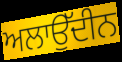
ਅਲਾਉੱਦੀਨ